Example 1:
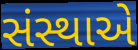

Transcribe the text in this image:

સંસ્થાએ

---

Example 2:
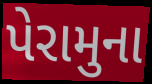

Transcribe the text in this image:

પેરામુના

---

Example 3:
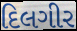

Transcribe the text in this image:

દિલગીર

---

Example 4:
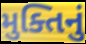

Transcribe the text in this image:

મુક્તિનું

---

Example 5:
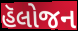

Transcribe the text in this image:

હૅલોજન